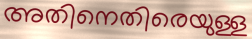
അതിനെതിരെയുള്ള